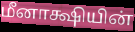
மீனாக்ஷியின்